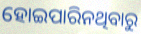
ହୋଇପାରିନଥିବାରୁ